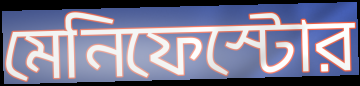
মেনিফেস্টোর